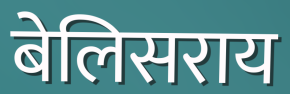
बेलिसराय